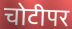
चोटीपर